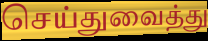
செய்துவைத்து